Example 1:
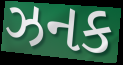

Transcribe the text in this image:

ઝનક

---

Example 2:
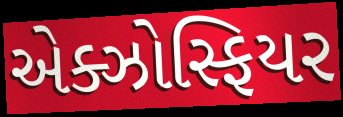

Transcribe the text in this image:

એક્ઝોસ્ફિયર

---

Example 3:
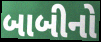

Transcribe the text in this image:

બાબીનો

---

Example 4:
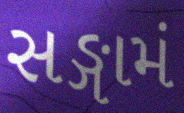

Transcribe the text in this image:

સઙ્ગામં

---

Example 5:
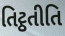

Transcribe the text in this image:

તિટ્ઠતીતિ